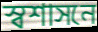
স্বশাসনে